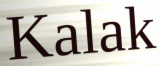
Kalak